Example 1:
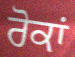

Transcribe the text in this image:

ਰੋਕਾਂ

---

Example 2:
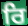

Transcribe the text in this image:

ਰਿ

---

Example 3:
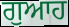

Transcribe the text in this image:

ਗੁਆਹ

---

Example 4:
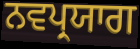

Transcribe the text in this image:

ਨਵਪ੍ਰਯਾਗ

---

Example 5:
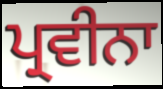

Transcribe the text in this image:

ਪ੍ਰਵੀਨਾ